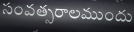
సంవత్సరాలముందు